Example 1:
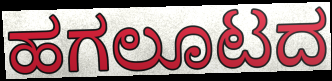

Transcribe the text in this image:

ಹಗಲೂಟದ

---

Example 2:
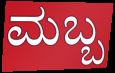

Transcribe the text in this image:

ಮಬ್ಬ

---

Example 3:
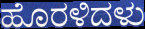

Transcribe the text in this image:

ಹೊರಳಿದಳು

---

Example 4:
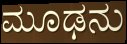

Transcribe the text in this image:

ಮೂಢನು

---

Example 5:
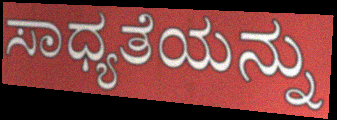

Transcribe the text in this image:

ಸಾಧ್ಯತೆಯನ್ನು